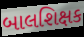
બાલશિક્ષક